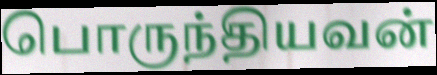
பொருந்தியவன்